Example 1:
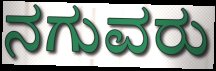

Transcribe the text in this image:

ನಗುವರು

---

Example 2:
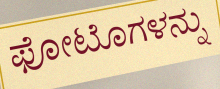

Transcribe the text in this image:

ಫೋಟೊಗಳನ್ನು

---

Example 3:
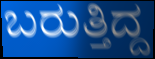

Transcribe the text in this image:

ಬರುತ್ತಿದ್ದ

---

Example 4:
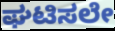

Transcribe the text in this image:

ಘಟಿಸಲೇ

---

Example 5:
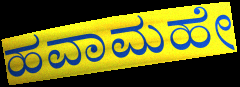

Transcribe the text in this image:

ಹವಾಮಹೇ